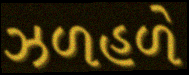
ઝળહળે